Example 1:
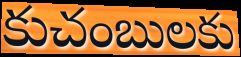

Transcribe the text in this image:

కుచంబులకు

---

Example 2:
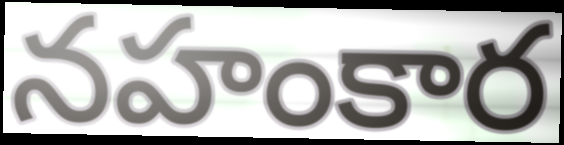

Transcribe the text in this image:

నహంకార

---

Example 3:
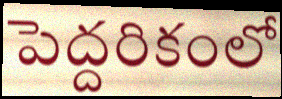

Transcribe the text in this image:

పెద్దరికంలో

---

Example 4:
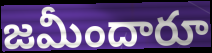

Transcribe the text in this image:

జమీందారూ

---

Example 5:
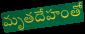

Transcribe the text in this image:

మృతదేహంతో